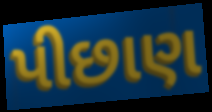
પીછાણ